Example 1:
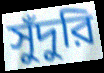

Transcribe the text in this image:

সুঁদুরি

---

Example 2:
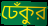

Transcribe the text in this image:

ঢেঁকুর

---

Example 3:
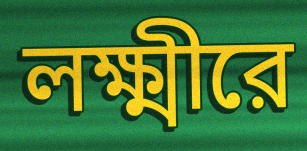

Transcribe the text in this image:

লক্ষ্মীরে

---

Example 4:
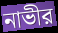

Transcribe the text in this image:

নাভীর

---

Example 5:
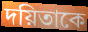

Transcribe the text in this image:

দয়িতাকে